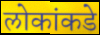
लोकांकडे